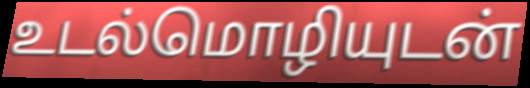
உடல்மொழியுடன்